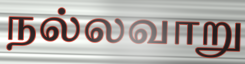
நல்லவாறு